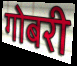
गोबरी